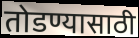
तोडण्यासाठी